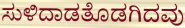
ಸುಳಿದಾಡತೊಡಗಿದವು